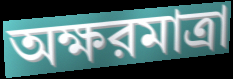
অক্ষরমাত্রা